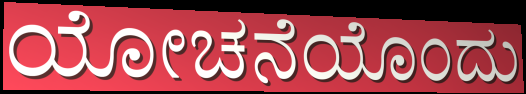
ಯೋಚನೆಯೊಂದು